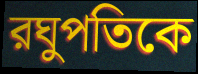
রঘুপতিকে